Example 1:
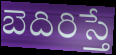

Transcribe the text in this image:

బెదిరిస్తే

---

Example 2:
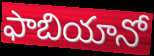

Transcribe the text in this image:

ఫాబియానో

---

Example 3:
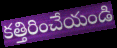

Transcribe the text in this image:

కత్తిరించేయండి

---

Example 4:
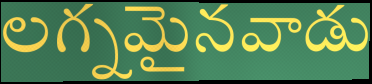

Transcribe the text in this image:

లగ్నమైనవాడు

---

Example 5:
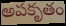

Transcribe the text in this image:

అపకృతం